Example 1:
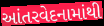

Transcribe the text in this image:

આંતરવેદનામાંથી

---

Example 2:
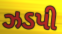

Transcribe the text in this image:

ઝડપી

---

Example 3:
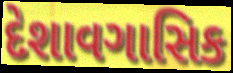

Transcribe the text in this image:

દેશાવગાસિક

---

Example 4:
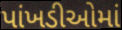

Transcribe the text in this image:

પાંખડીઓમાં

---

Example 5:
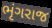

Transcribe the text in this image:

ભૃંગરાજ